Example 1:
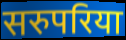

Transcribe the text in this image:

सरुपरिया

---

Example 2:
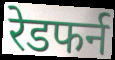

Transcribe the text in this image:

रेडफर्न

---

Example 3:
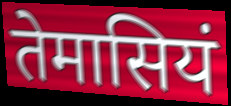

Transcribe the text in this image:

तेमासियं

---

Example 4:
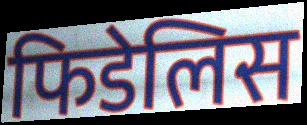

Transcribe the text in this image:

फिडेलिस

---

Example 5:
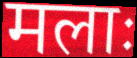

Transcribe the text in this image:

मलाः